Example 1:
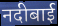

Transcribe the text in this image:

नदीबाई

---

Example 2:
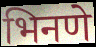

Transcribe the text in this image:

भिनणे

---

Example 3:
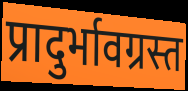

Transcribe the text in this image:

प्रादुर्भावग्रस्त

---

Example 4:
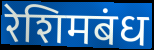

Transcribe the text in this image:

रेशिमबंध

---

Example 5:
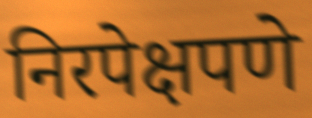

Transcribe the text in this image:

निरपेक्षपणे